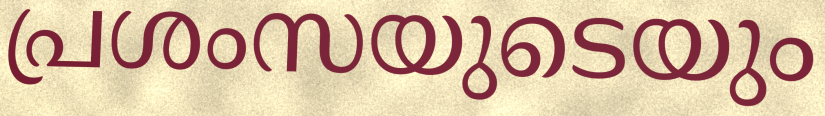
പ്രശംസയുടെയും